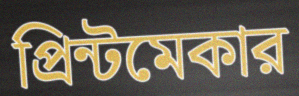
প্রিন্টমেকার